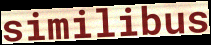
similibus